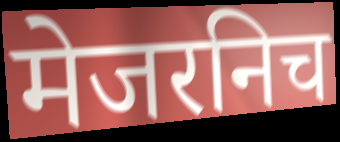
मेजरनिच